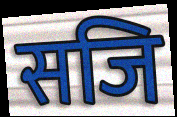
सजि